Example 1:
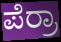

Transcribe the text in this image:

ಪೆರ್ರಾ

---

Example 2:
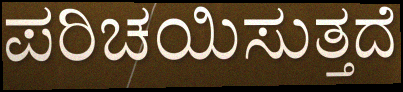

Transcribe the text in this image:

ಪರಿಚಯಿಸುತ್ತದೆ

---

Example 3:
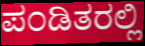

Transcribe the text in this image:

ಪಂಡಿತರಲ್ಲಿ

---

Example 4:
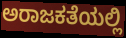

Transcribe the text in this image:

ಅರಾಜಕತೆಯಲ್ಲಿ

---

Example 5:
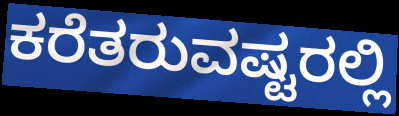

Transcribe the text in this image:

ಕರೆತರುವಷ್ಟರಲ್ಲಿ